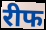
रीफ